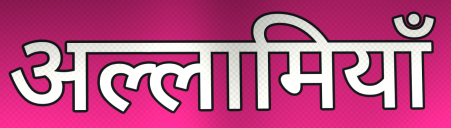
अल्लामियाँ